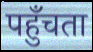
पहुँचता